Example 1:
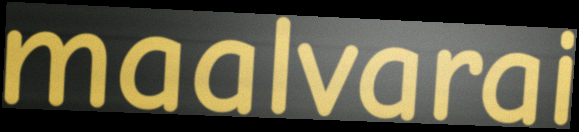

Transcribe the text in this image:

maalvarai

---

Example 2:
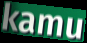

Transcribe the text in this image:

kamu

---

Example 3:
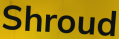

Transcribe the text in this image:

Shroud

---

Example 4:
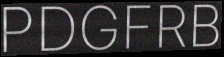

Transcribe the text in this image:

PDGFRB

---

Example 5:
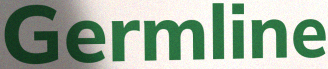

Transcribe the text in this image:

Germline